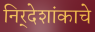
निर्देशांकाचे